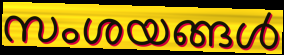
സംശയങ്ങൾ